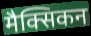
मैक्सिकन